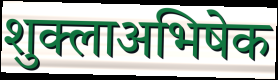
शुक्लाअभिषेक